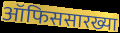
ऑफिससारख्या